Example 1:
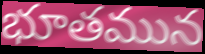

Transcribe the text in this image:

భూతమున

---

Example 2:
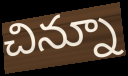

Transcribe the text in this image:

చిన్నూ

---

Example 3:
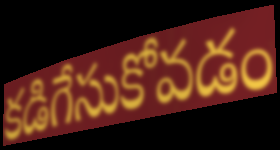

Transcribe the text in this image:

కడిగేసుకోవడం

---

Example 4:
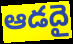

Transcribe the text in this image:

ఆడదై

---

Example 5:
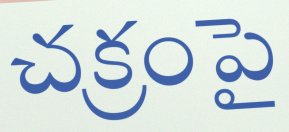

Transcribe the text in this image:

చక్రంపై